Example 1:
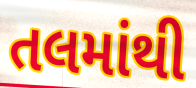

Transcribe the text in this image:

તલમાંથી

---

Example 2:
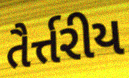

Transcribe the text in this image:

તૈર્ત્તરીય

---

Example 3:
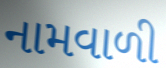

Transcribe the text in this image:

નામવાળી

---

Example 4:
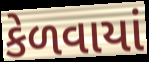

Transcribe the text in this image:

કેળવાયાં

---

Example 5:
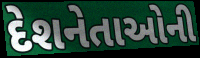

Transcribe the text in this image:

દેશનેતાઓની